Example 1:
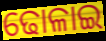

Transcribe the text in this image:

ଢୋଳାଇ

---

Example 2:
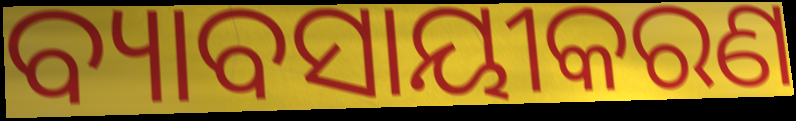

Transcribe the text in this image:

ବ୍ୟାବସାୟୀକରଣ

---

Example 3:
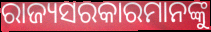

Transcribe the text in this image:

ରାଜ୍ୟସରକାରମାନଙ୍କୁ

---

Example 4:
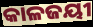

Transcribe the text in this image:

କାଳଜୟୀ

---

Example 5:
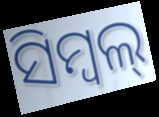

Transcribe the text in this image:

ସିମ୍ବଲ୍